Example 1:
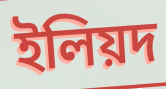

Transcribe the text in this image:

ইলিয়দ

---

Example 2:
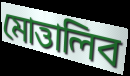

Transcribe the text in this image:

মোত্তালিব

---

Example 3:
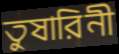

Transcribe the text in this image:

তুষারিনী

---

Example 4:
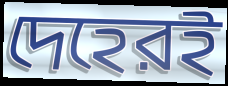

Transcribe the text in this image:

দেহেরই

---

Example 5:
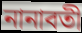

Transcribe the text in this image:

নানাবতী